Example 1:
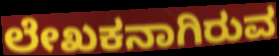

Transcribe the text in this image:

ಲೇಖಕನಾಗಿರುವ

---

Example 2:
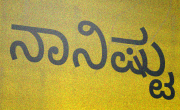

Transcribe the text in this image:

ನಾನಿಷ್ಟು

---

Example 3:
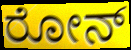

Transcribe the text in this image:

ರೋನ್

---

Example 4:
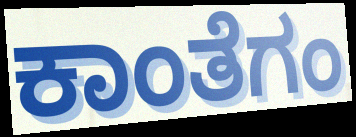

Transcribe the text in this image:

ಕಾಂತೆಗಂ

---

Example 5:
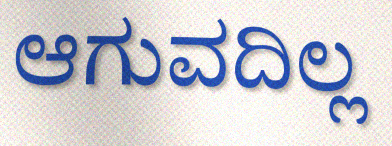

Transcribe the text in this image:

ಆಗುವದಿಲ್ಲ